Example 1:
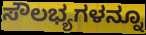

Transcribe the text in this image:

ಸೌಲಭ್ಯಗಳನ್ನೂ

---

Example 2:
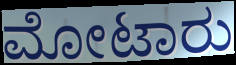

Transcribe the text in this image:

ಮೋಟಾರು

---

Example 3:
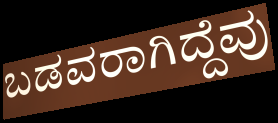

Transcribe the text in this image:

ಬಡವರಾಗಿದ್ದೆವು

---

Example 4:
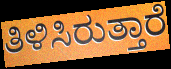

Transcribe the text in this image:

ತಿಳಿಸಿರುತ್ತಾರೆ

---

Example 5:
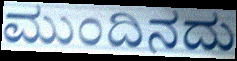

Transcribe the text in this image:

ಮುಂದಿನದು